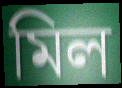
মিল